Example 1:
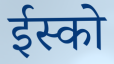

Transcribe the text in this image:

ईस्को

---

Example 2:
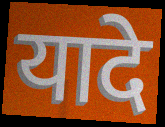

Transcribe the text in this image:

यादे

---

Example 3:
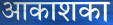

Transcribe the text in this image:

आकाशका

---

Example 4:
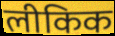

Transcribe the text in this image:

लीकिक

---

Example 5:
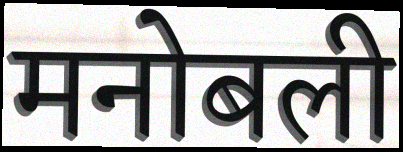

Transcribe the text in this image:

मनोबली